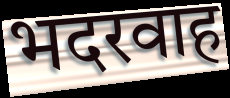
भदरवाह